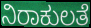
ನಿರಾಕುಲತೆ